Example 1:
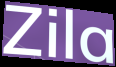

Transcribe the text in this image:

Zila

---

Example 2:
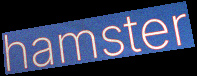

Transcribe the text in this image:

hamster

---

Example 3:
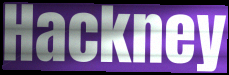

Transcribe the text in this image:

Hackney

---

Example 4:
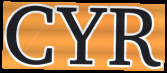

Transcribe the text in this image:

CYR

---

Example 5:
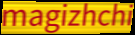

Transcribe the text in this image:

magizhchi